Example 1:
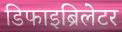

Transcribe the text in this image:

डिफाइब्रिलेटर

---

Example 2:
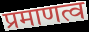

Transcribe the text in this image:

प्रमाणत्व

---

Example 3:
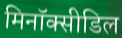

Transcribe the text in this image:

मिनॉक्सीडिल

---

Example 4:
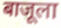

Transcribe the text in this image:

बाजूला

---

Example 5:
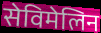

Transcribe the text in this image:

सेविमेलिन